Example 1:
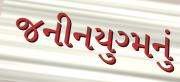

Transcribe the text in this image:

જનીનયુગ્મનું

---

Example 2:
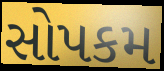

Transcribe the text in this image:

સોપકમ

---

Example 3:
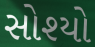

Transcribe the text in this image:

સોશ્યો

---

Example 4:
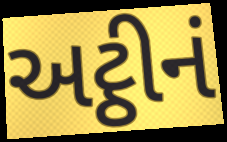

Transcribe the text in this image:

અટ્ઠીનં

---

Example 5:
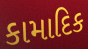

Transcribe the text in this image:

કામાદિક